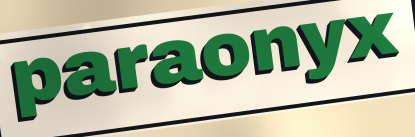
paraonyx